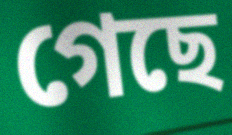
গেছে